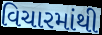
વિચારમાંથી